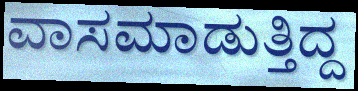
ವಾಸಮಾಡುತ್ತಿದ್ದ